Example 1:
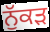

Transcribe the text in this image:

ਨੁੱਕਡ਼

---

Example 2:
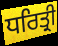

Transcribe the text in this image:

ਧਰਿਤ੍ਰੀ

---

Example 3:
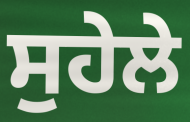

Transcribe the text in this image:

ਸੁਹੇਲੇ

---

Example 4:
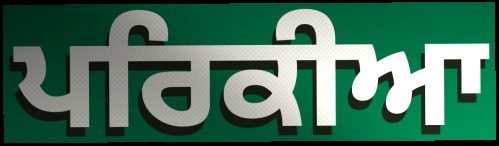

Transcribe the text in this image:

ਪਰਿਕੀਆ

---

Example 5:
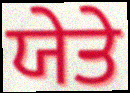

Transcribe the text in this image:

ਯੇਤੇ